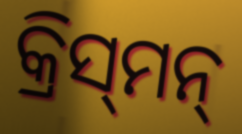
କ୍ରିସ୍‍ମନ୍